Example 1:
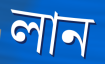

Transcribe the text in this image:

লান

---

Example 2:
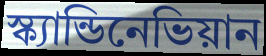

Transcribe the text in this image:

স্ক্যান্ডিনেভিয়ান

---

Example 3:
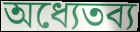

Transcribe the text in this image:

অধ্যেতব্য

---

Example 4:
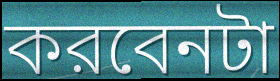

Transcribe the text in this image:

করবেনটা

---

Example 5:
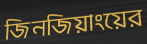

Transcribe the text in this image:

জিনজিয়াংয়ের